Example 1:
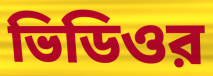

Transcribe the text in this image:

ভিডিওর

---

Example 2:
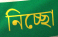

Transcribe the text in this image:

নিচ্ছো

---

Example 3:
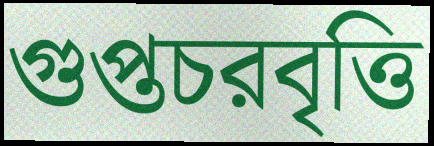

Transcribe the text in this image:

গুপ্তচরবৃত্তি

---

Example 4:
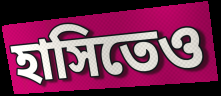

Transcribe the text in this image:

হাসিতেও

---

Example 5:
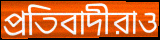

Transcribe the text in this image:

প্রতিবাদীরাও